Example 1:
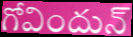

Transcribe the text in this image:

గోవిందున్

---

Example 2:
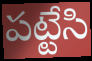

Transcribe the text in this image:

పట్టేసి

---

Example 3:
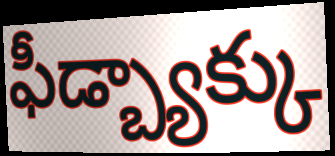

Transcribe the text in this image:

ఫీడ్బ్యాక్కు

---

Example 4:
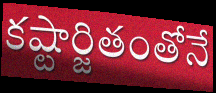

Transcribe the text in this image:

కష్టార్జితంతోనే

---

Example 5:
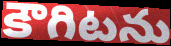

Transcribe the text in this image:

కౌగిటను